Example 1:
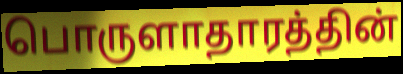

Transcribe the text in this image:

பொருளாதாரத்தின்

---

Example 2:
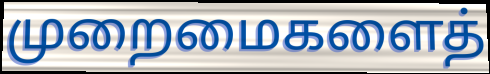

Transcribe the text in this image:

முறைமைகளைத்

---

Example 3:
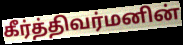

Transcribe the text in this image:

கீர்த்திவர்மனின்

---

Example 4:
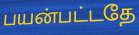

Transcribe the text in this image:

பயன்பட்டதே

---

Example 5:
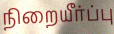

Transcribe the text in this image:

நிறையீர்ப்பு